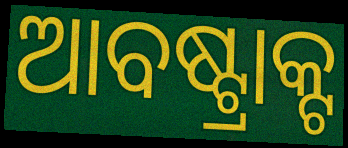
ଆବଷ୍ଟ୍ରାକ୍ଟ